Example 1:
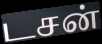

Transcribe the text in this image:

டசன்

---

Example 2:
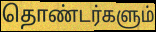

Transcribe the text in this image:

தொண்டர்களும்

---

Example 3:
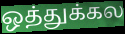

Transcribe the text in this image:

ஒத்துக்கல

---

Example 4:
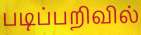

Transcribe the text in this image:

படிப்பறிவில்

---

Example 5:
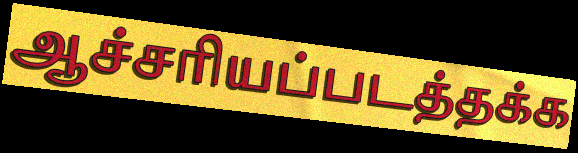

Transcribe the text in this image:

ஆச்சரியப்படத்தக்க